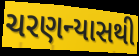
ચરણન્યાસથી